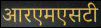
आरएमएसटी